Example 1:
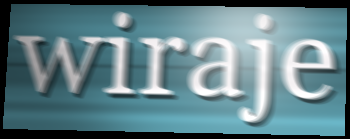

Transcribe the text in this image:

wiraje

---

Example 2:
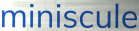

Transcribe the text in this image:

miniscule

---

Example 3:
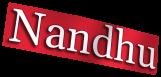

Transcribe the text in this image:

Nandhu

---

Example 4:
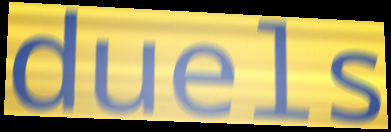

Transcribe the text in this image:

duels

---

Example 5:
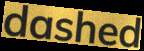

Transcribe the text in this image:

dashed